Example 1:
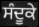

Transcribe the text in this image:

ਸੰਦੂਕੇ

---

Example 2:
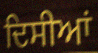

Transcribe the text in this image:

ਦਿਸੀਆਂ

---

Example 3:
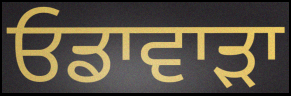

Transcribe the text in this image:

ਓਡਾਵਾੜਾ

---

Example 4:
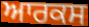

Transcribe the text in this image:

ਆਰਕਸ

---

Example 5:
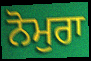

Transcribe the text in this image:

ਨੋਮੁਰਾ